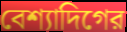
বেশ্যাদিগের